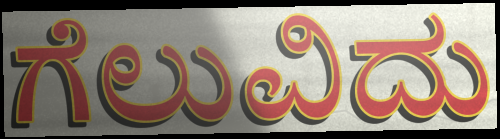
ಗೆಲುವಿದು